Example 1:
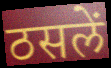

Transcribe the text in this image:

ठसलें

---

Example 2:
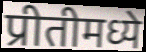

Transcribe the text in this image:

प्रीतीमध्ये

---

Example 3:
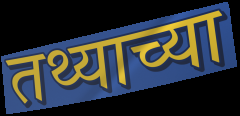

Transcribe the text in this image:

तथ्याच्या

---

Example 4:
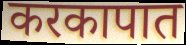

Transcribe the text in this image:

करकापात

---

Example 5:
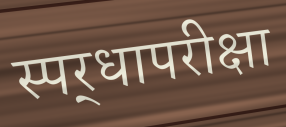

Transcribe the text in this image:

स्पर्धापरीक्षा